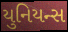
યુનિયન્સ